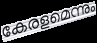
കേരളമെന്നും